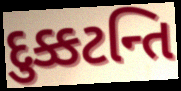
દુક્કટન્તિ